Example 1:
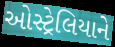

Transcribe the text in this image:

ઓસ્ટ્રેલિયાને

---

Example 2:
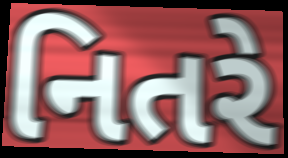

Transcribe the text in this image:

નિતરે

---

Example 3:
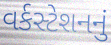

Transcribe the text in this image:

વર્કસ્ટેશનનું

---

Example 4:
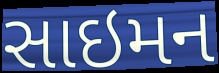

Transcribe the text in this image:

સાઇમન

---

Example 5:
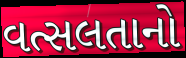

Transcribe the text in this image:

વત્સલતાનો